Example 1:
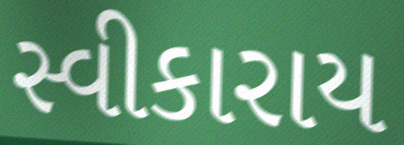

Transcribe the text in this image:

સ્વીકારાય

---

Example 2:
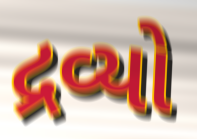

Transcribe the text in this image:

દ્રવ્યો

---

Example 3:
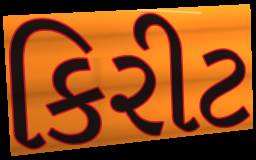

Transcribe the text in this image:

કિરીટ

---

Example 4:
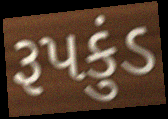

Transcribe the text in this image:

રૂપકુંડ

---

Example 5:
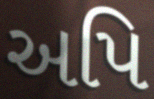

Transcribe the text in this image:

અપિ